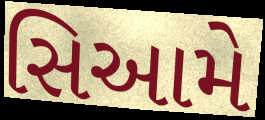
સિઆમે